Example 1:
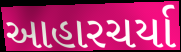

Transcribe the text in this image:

આહારચર્યા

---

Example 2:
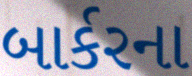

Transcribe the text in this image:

બાર્કરના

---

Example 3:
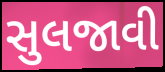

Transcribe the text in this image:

સુલજાવી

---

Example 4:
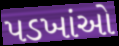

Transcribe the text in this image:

પડખાંઓ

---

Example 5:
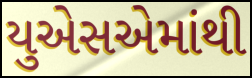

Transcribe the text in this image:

યુએસએમાંથી